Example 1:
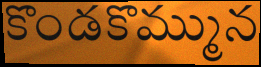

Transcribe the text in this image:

కొండకొమ్మున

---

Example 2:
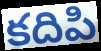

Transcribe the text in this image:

కదిపి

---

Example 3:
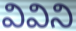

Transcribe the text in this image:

వివిని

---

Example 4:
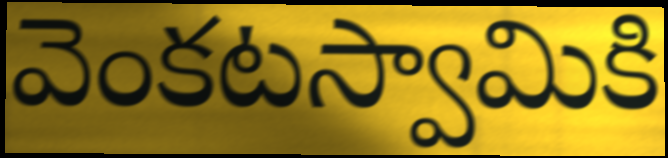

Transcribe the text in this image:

వెంకటస్వామికి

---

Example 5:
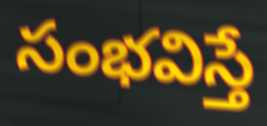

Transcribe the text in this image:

సంభవిస్తే